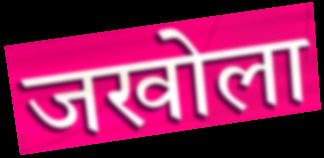
जखोला